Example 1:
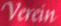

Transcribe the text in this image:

Verein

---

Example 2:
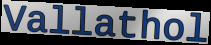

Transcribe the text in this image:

Vallathol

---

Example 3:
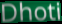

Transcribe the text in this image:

Dhoti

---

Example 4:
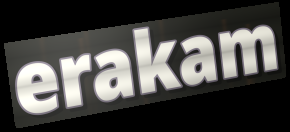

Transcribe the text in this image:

erakam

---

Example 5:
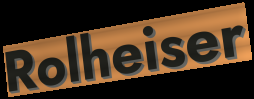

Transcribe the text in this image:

Rolheiser